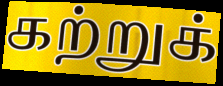
கற்றுக்